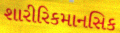
શારીરિકમાનસિક